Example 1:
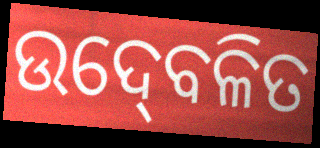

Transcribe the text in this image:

ଉଦ୍‍ବେଳିତ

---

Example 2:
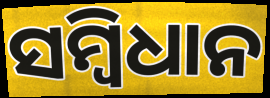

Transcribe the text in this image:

ସମ୍ୱିଧାନ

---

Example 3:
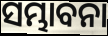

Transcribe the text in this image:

ସମ୍ଭାବନା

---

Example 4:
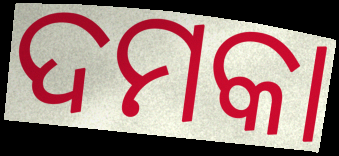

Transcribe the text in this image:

ଦମକା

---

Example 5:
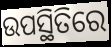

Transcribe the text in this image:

ଉପସ୍ଥିତିରେ